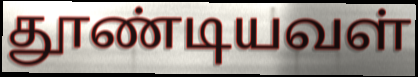
தூண்டியவள்